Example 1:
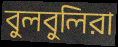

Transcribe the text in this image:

বুলবুলিরা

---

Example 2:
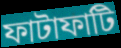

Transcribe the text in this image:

ফাটাফাটি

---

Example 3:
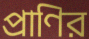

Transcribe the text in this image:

প্রাণির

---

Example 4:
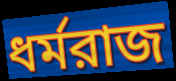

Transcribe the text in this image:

ধর্মরাজ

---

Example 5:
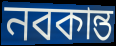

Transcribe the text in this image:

নবকান্ত